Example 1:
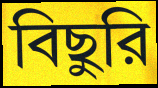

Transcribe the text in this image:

বিছুরি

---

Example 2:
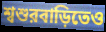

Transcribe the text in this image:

শ্বশুরবাড়িতেও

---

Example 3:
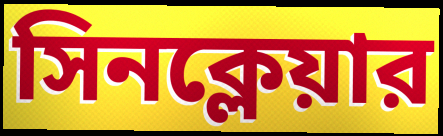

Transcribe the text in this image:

সিনক্লেয়ার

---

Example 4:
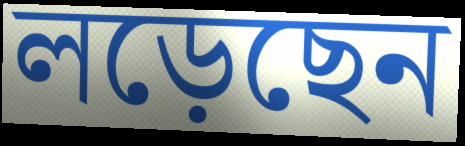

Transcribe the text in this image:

লড়েছেন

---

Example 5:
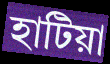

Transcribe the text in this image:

হাটিয়া